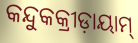
କନ୍ଦୁକକ୍ରୀଡ଼ାୟାମ୍